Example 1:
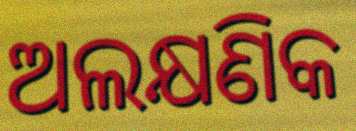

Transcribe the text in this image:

ଅଲକ୍ଷଣିକ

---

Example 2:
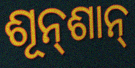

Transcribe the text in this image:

ଶୂନ୍‌ଶାନ୍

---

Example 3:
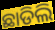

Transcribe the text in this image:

ଛାଡିଲି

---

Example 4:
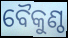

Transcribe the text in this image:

ବୈକୁଣ୍ଠ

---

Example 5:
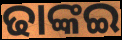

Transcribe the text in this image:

ଢାଙ୍କଇ